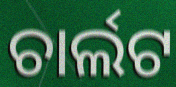
ଚାର୍ଲଟ